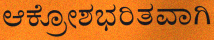
ಆಕ್ರೋಶಭರಿತವಾಗಿ